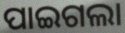
ପାଇଗଲା